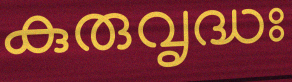
കുരുവൃദ്ധഃ